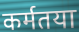
कर्मतया